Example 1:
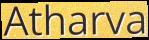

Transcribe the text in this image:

Atharva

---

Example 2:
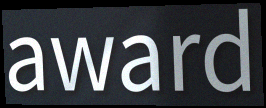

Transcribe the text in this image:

award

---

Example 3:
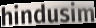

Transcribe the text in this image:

hindusim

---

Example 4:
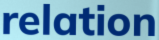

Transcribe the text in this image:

relation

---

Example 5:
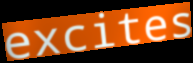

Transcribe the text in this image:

excites